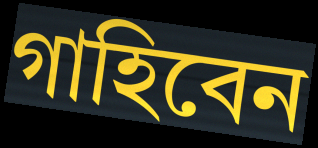
গাহিবেন